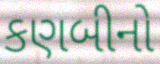
કણબીનો